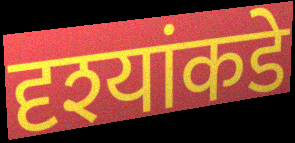
दृश्यांकडे